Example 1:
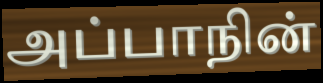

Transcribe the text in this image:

அப்பாநின்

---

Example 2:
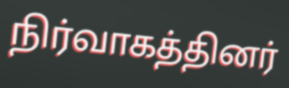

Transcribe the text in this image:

நிர்வாகத்தினர்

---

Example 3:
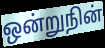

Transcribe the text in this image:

ஒன்றுநின்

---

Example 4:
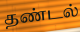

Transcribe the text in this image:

தண்டல்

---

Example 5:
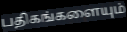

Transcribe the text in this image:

பதிகங்களையும்